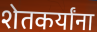
शेतकर्यांना